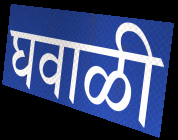
घवाळी